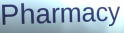
Pharmacy